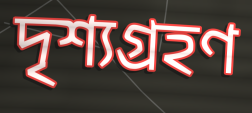
দৃশ্যগ্ৰহণ